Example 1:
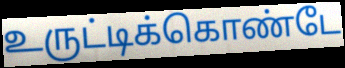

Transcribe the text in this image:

உருட்டிக்கொண்டே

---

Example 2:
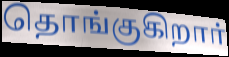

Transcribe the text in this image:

தொங்குகிறார்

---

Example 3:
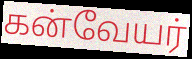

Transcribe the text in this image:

கன்வேயர்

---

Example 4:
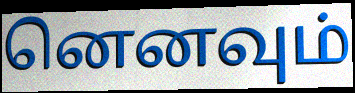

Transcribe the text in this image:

னெனவும்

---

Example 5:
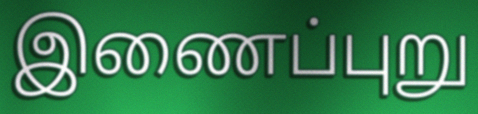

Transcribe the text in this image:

இணைப்புறு